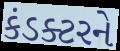
કંડક્ટરને